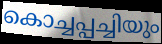
കൊച്ചപ്പച്ചിയും